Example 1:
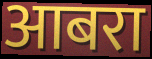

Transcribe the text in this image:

आबरा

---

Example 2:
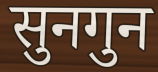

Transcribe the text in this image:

सुनगुन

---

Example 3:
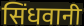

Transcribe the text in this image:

सिंधवानी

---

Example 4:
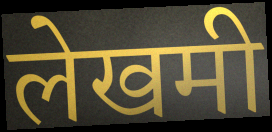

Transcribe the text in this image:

लेखमी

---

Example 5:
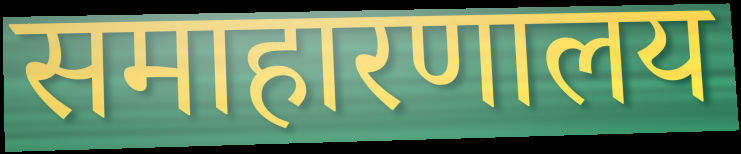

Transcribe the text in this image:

समाहारणालय